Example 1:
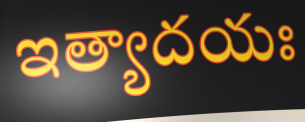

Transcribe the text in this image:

ఇత్యాదయః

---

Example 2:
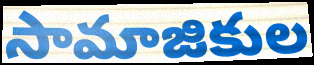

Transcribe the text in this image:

సామాజికుల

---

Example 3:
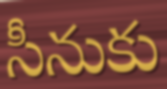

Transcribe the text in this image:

సీనుకు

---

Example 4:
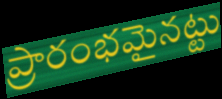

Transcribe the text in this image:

ప్రారంభమైనట్టు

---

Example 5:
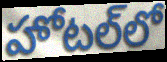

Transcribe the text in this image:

హోటల్‌లో